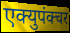
एक्युपंक्चर